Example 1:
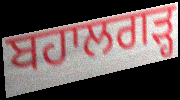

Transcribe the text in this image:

ਬਹਾਲਗੜ੍ਹ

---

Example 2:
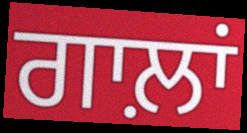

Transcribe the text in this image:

ਗਾਲ਼ਾਂ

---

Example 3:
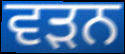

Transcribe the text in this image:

ਵੜਨ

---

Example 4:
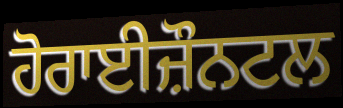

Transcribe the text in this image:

ਹੋਰਾਈਜ਼ੌਨਟਲ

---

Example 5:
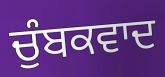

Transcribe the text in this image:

ਚੁੰਬਕਵਾਦ